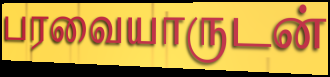
பரவையாருடன்